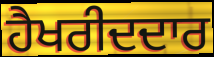
ਹੈਖਰੀਦਦਾਰ